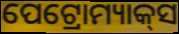
ପେଟ୍ରୋମ୍ୟାକ୍‌ସ